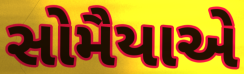
સોમૈયાએ